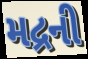
મદ્રની